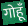
गोहूँ